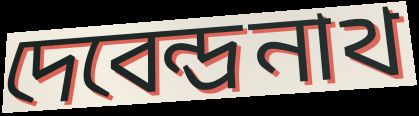
দেবেন্দ্রনাথ